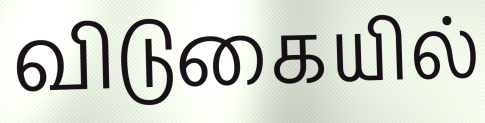
விடுகையில்